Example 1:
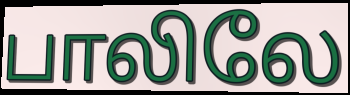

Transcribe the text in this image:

பாலிலே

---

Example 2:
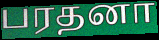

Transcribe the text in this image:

பரதனா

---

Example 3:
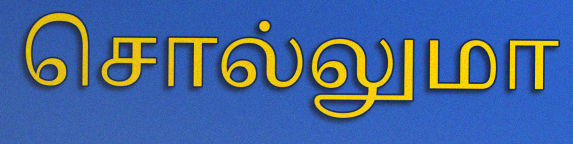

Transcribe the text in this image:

சொல்லுமா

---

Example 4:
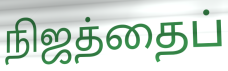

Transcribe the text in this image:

நிஜத்தைப்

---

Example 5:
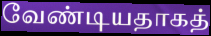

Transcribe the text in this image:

வேண்டியதாகத்